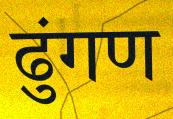
ढुंगण